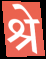
श्रे